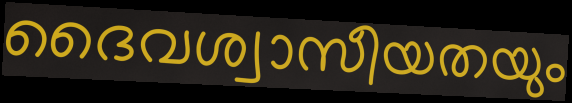
ദൈവശ്വാസീയതയും